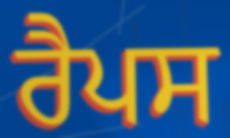
ਰੈਪਸ